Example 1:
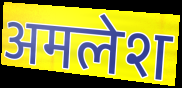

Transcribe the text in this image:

अमलेश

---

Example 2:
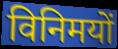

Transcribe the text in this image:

विनिमयों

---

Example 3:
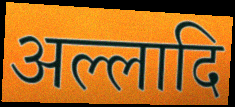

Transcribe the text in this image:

अल्लादि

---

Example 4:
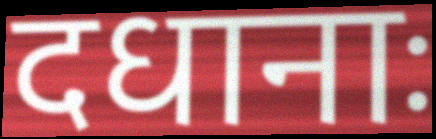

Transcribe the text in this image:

दधानाः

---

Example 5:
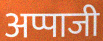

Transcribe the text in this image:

अप्पाजी